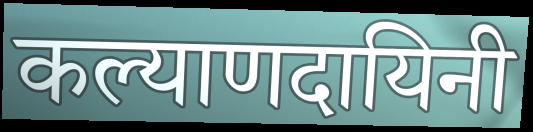
कल्याणदायिनी